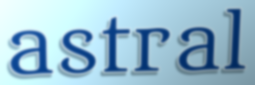
astral